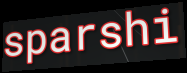
sparshi